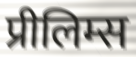
प्रीलिम्स